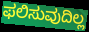
ಫಲಿಸುವುದಿಲ್ಲ